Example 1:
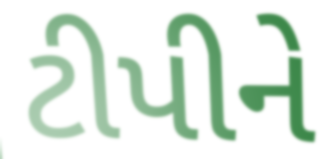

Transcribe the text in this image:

ટીપીને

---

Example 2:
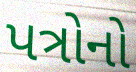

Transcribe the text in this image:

પત્રોનો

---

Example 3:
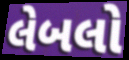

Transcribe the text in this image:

લેબલો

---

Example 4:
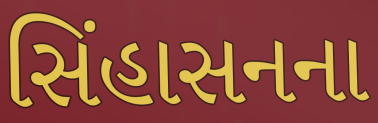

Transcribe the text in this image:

સિંહાસનના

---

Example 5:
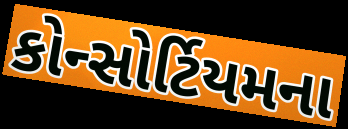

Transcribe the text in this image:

કોન્સોર્ટિયમના